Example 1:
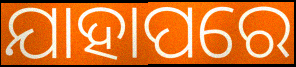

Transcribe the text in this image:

ଯାହାପରେ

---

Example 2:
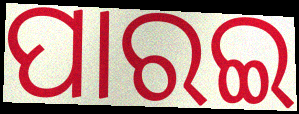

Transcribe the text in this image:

ପାରଇ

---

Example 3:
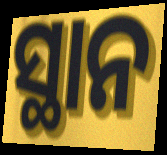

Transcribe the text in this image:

ସ୍ଥାନ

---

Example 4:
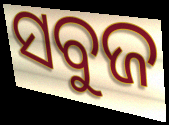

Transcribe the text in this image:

ସବୁଜ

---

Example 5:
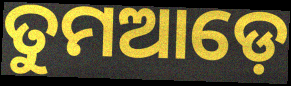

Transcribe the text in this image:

ତୁମଆଡ଼େ